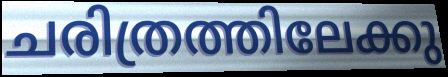
ചരിത്രത്തിലേക്കു